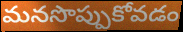
మనసొప్పుకోవడం